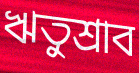
ঋতুশ্রাব